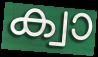
ക്വാ